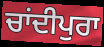
ਚਾਂਦੀਪੁਰਾ